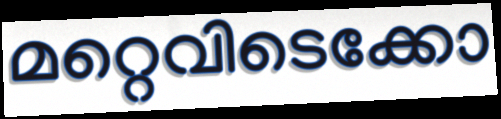
മറ്റെവിടെക്കോ